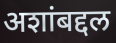
अशांबद्दल